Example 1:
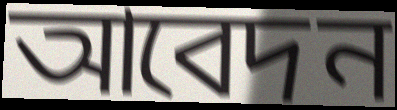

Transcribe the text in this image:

আবেদন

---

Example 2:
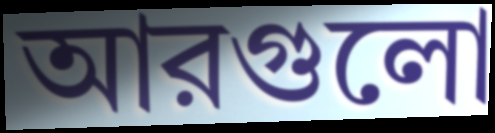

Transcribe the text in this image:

আরগুলো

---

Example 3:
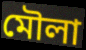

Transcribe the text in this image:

মৌলা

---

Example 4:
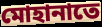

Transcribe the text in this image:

মোহানাতে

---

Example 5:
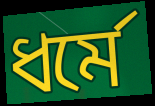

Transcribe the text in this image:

ধর্মে